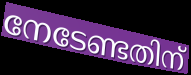
നേടേണ്ടതിന്